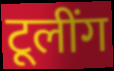
टूलींग